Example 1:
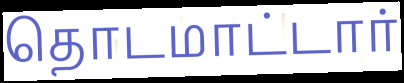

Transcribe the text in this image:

தொடமாட்டார்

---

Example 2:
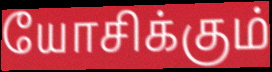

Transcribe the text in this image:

யோசிக்கும்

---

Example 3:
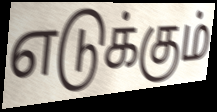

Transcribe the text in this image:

எடுக்கும்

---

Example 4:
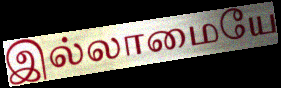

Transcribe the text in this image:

இல்லாமையே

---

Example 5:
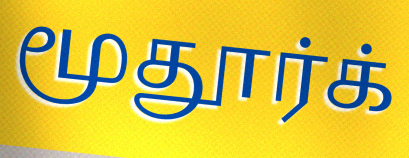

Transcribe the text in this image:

மூதூர்க்